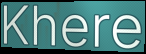
Khere